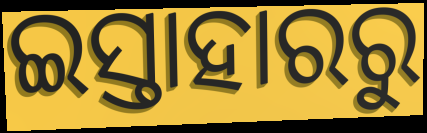
ଇସ୍ତାହାରରୁ